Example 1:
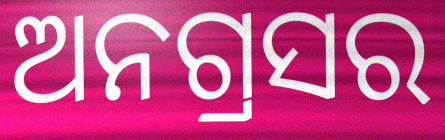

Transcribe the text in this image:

ଅନଗ୍ରସର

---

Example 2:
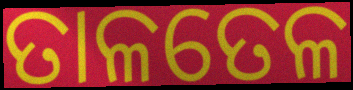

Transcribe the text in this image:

ତାଳତେଳ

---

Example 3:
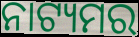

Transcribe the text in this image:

ନାଟ୍ୟମର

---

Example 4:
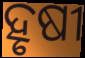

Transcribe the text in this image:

ହୃଷୀ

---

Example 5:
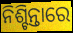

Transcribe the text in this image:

ନିଶ୍ଚିନ୍ତାରେ